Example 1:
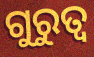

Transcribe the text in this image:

ଗୁରୁତ୍ୱ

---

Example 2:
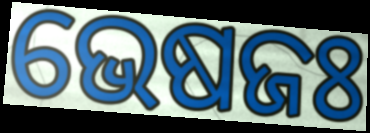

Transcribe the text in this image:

ଭେଷଜଃ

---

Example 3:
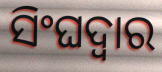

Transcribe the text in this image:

ସିଂଘଦ୍ୱାର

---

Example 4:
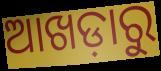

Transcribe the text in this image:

ଆଖଡ଼ାରୁ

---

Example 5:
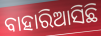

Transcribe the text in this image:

ବାହାରିଆସିଛି